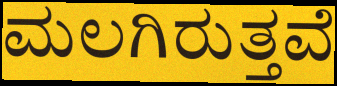
ಮಲಗಿರುತ್ತವೆ